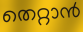
തെറ്റാൻ